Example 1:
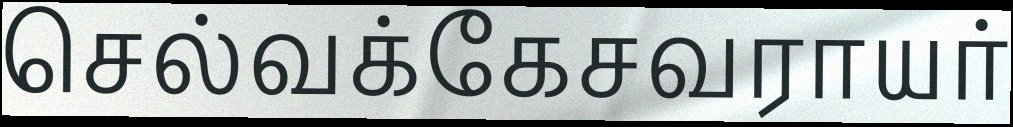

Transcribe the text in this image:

செல்வக்கேசவராயர்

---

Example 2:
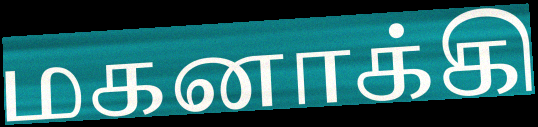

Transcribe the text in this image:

மகனாக்கி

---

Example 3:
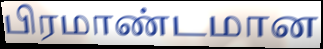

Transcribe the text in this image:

பிரமாண்டமான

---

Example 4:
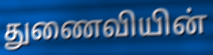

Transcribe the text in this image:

துணைவியின்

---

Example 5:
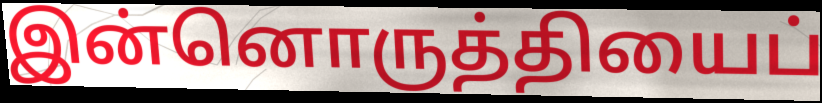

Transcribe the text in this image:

இன்னொருத்தியைப்